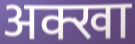
अक्खा